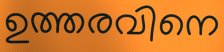
ഉത്തരവിനെ